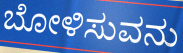
ಬೋಳಿಸುವನು